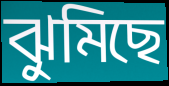
ঝুমিছে